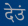
देउं